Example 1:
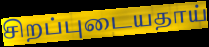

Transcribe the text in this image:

சிறப்புடையதாய்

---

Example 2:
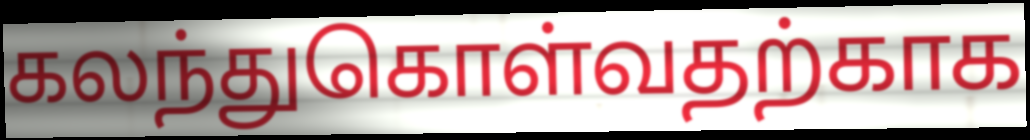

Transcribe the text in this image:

கலந்துகொள்வதற்காக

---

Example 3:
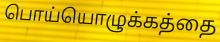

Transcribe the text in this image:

பொய்யொழுக்கத்தை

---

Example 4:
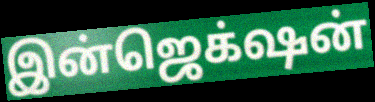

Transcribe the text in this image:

இன்ஜெக்‌ஷன்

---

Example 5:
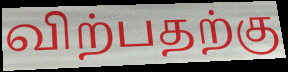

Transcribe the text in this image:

விற்பதற்கு